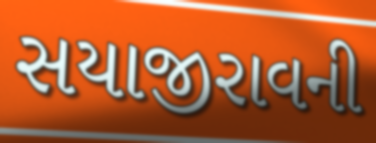
સયાજીરાવની